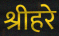
श्रीहरे